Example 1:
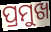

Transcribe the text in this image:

ପ୍ରମୁଖ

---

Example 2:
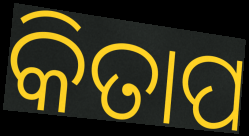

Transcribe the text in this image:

କିତାପ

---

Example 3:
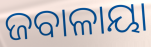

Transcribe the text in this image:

ଜବାଳାୟା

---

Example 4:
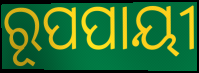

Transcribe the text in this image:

ରୂପପାୟୀ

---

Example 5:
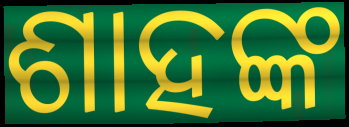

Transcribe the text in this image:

ଶାହଙ୍କ